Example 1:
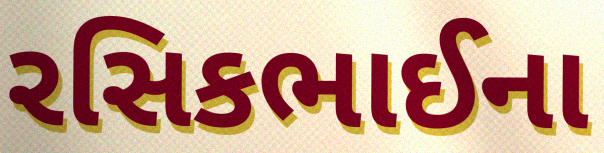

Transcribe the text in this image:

રસિકભાઈના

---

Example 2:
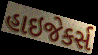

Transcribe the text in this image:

હાઇજેકર્સ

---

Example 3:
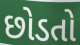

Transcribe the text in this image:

છોડતો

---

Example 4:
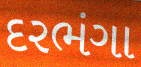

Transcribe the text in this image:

દરભંગા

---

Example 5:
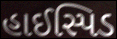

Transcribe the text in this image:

હાઈસ્પિડ